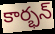
కార్భన్